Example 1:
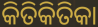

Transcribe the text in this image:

କିତିକିତିକା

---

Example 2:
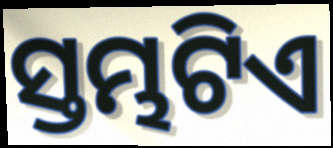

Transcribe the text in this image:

ସ୍ତମ୍ଭଟିଏ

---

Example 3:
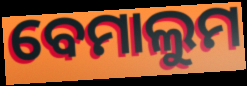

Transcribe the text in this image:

ବେମାଲୁମ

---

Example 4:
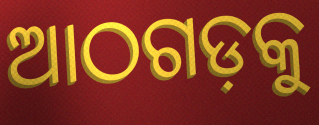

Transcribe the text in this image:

ଆଠଗଡ଼କୁ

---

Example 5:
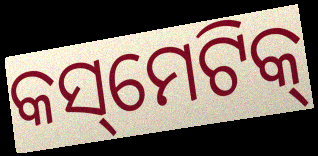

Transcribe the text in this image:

କସ୍‌ମେଟିକ୍